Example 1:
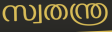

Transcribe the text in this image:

സ്വതന്ത്ര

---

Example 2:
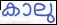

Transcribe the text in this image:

കാലു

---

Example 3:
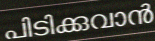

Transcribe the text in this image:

പിടിക്കുവാൻ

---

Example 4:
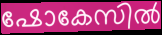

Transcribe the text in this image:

ഷോകേസിൽ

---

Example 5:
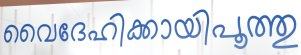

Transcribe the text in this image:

വൈദേഹിക്കായിപൂത്തു